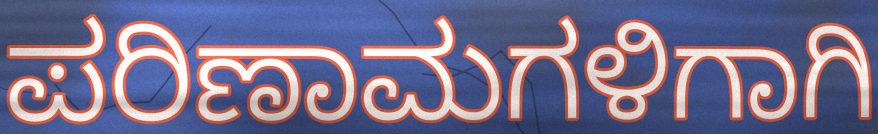
ಪರಿಣಾಮಗಳಿಗಾಗಿ